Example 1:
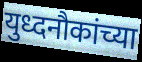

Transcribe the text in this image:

युध्दनौकांच्या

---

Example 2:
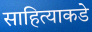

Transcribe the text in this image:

साहित्याकडे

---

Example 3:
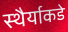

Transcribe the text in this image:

स्थैर्याकडे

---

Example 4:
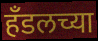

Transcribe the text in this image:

हॅंडलच्या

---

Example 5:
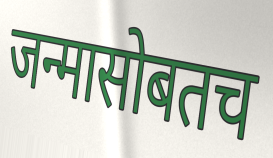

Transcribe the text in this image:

जन्मासोबतच